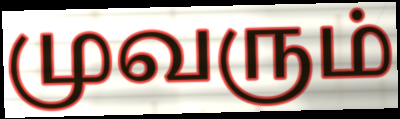
முவரும்